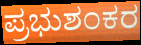
ಪ್ರಭುಶಂಕರ